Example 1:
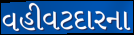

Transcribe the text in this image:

વહીવટદારના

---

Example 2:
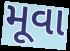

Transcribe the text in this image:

મૂવા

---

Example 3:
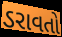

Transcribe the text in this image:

ડરાવતો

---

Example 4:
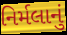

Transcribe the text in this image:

નિર્મલાનું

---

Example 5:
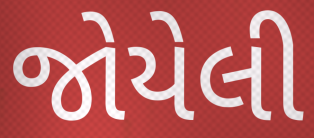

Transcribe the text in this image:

જોયેલી